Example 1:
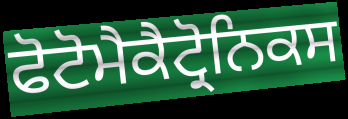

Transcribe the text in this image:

ਫੋਟੋਮੈਕੈਟ੍ਰੋਨਿਕਸ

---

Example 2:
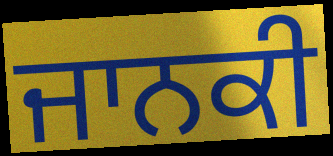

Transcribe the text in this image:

ਜਾਨਕੀ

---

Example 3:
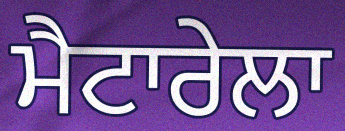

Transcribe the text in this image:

ਮੈਟਾਰੇਲਾ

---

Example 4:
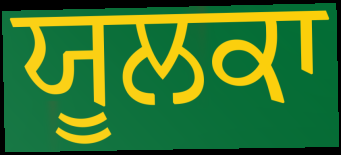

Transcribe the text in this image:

ਯੂਲਕਾ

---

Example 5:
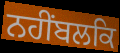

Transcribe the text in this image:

ਨਹੀਂਬਲਕਿ